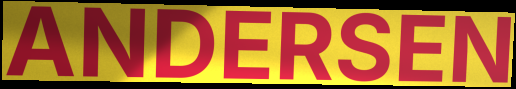
ANDERSEN